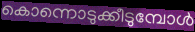
കൊന്നൊടുക്കീടുമ്പോൾ